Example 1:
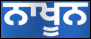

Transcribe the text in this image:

ਨਾਖੂਨ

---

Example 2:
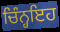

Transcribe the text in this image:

ਚਿੰਨ੍ਹਇਹ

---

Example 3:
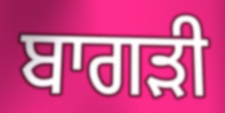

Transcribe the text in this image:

ਬਾਗੜੀ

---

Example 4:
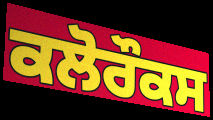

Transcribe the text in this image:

ਕਲੋਰੌਕਸ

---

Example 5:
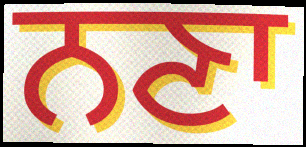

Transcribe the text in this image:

ਨਣਾ